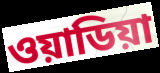
ওয়াডিয়া